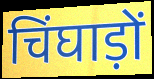
चिंघाड़ों